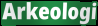
Arkeologi